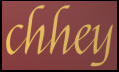
chhey